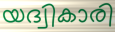
യദ്വികാരി